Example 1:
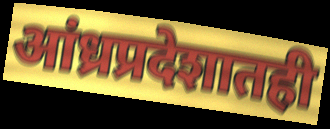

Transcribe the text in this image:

आंध्रप्रदेशातही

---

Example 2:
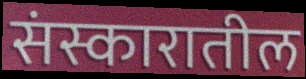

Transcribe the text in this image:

संस्कारातील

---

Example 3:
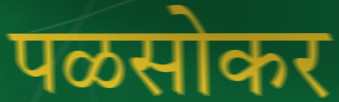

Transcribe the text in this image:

पळसोकर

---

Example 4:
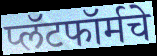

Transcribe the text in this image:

प्लॅटफॉर्मचे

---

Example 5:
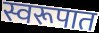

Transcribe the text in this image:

स्वरूपात